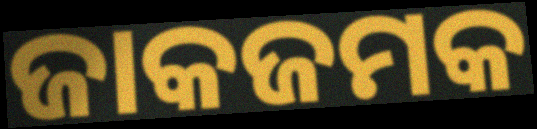
ଜାକଜମକ